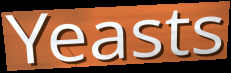
Yeasts